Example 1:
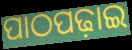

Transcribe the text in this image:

ପାଠପଢ଼ାଇ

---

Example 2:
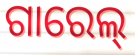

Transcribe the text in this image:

ଗାରେଲ୍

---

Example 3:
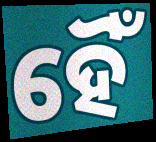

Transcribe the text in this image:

ହୈଁ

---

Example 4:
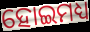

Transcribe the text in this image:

ହୋଇମଧ୍ୟ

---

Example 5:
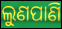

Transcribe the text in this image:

ଲୁଣପାଣି